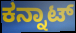
ಕನ್ನಾಟ್